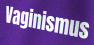
Vaginismus